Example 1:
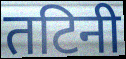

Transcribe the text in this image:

तटिनी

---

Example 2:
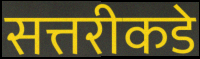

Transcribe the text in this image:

सत्तरीकडे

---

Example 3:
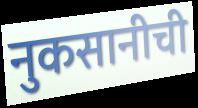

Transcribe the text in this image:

नुकसानीची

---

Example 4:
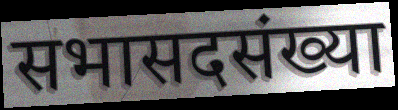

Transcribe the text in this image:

सभासदसंख्या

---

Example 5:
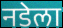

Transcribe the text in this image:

नडेला